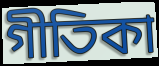
গীতিকা